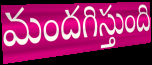
మందగిస్తుంది